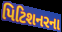
પિટિશનરના